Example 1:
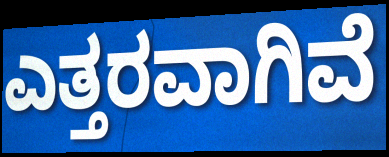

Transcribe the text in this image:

ಎತ್ತರವಾಗಿವೆ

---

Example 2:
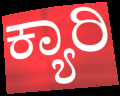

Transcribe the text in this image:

ಕ್ಯಾರಿ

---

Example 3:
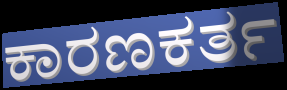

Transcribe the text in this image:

ಕಾರಣಕರ್ತ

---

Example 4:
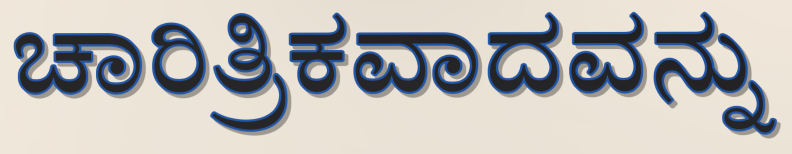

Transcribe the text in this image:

ಚಾರಿತ್ರಿಕವಾದವನ್ನು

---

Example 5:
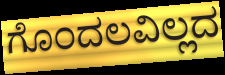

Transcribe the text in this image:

ಗೊಂದಲವಿಲ್ಲದ